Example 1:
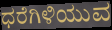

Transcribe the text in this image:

ಧರೆಗಿಳಿಯುವ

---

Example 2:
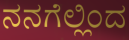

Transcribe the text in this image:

ನನಗೆಲ್ಲಿಂದ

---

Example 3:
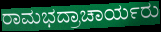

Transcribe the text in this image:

ರಾಮಭದ್ರಾಚಾರ್ಯರು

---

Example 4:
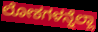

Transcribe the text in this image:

ಲೋಕಗಳನ್ನೆಲ್ಲಾ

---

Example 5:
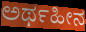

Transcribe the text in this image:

ಅರ್ಥಹೀನ